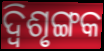
ଦ୍ବିଶୃଙ୍ଗକ